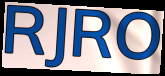
RJRO